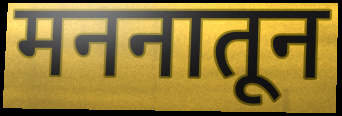
मननातून